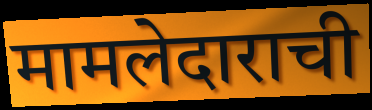
मामलेदाराची